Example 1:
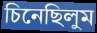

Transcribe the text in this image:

চিনেছিলুম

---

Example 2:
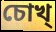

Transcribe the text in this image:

চোখ্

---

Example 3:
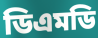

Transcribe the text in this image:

ডিএমডি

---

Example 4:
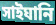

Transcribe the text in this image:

সাইঘানি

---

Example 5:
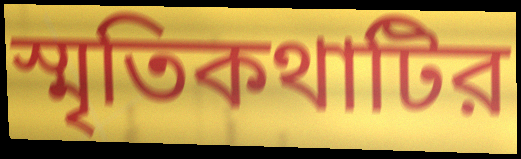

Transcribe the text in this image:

স্মৃতিকথাটির